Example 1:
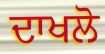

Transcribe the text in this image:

ਦਾਖਲੋ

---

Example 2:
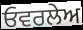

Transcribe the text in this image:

ਓਵਰਲੇਅ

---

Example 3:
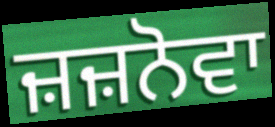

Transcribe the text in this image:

ਜ਼ਜ਼ਨੋਵਾ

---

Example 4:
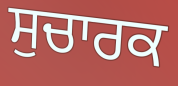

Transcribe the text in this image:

ਸੁਚਾਰਕ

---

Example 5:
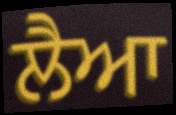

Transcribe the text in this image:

ਲੈਆ